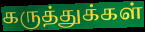
கருத்துக்கள்